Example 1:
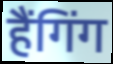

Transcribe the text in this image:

हैंगिंग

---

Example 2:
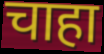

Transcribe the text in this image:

चाहा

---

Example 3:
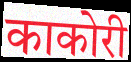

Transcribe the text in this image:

काकोरी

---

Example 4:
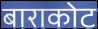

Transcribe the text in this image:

बाराकोट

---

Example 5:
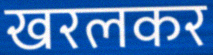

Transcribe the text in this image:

खरलकर